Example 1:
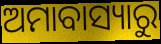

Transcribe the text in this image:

ଅମାବାସ୍ୟାରୁ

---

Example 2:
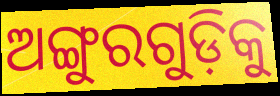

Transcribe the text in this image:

ଅଙ୍ଗୁରଗୁଡ଼ିକୁ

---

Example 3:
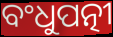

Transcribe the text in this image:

ବଂଧୁପତ୍ନୀ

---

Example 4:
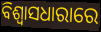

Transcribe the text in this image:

ବିଶ୍ଵାସଧାରାରେ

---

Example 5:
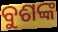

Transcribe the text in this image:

ବୁଶଙ୍କ